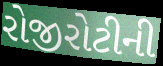
રોજીરોટીની